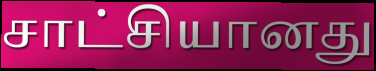
சாட்சியானது